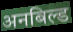
अनबिल्ड